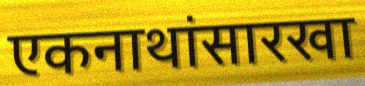
एकनाथांसारखा